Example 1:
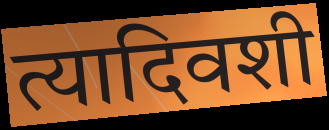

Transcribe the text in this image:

त्यादिवशी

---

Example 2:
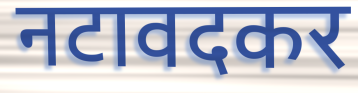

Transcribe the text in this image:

नटावदकर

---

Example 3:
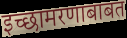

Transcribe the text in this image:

इच्छामरणाबाबत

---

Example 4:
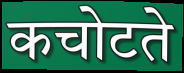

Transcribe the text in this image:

कचोटते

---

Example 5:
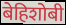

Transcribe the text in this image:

बेहिशोबी